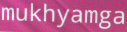
mukhyamga